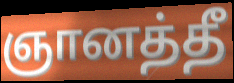
ஞானத்தீ